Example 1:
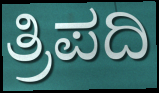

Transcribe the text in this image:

ತ್ರಿಪದಿ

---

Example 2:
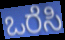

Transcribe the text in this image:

ಒರೆಸಿ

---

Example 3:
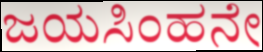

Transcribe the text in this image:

ಜಯಸಿಂಹನೇ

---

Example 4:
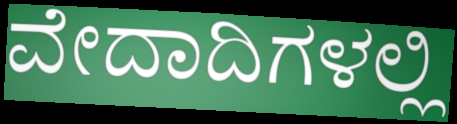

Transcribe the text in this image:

ವೇದಾದಿಗಳಲ್ಲಿ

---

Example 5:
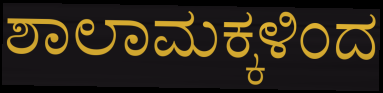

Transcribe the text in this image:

ಶಾಲಾಮಕ್ಕಳಿಂದ